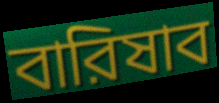
বারিষাব